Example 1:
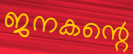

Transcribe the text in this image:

ജനകന്റെ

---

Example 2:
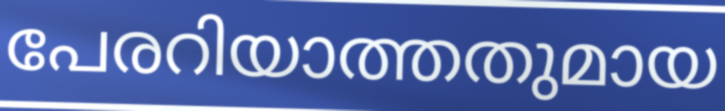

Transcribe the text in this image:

പേരറിയാത്തതുമായ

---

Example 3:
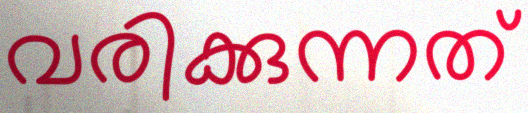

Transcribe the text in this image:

വരിക്കുന്നത്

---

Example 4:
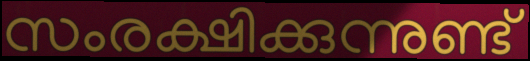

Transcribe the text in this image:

സംരക്ഷിക്കുന്നുണ്ട്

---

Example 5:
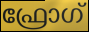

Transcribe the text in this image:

ഫ്രോഗ്